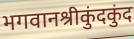
भगवानश्रीकुंदकुंद